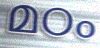
മഠം